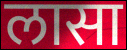
लासा